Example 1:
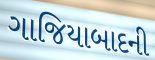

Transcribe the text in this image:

ગાજિયાબાદની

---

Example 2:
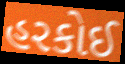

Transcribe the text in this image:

હરકોઈ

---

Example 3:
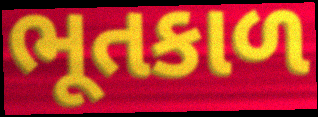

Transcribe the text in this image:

ભૂતકાળ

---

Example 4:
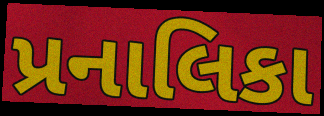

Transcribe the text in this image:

પ્રનાલિકા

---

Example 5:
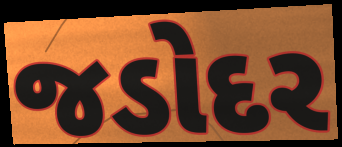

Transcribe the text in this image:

જડોદર